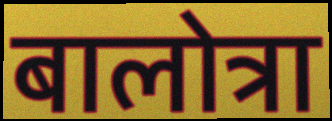
बालोत्रा